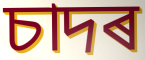
চাদৰ